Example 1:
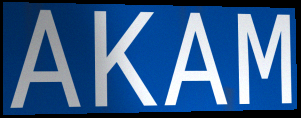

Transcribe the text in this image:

AKAM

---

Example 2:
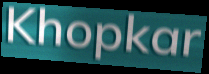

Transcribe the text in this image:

Khopkar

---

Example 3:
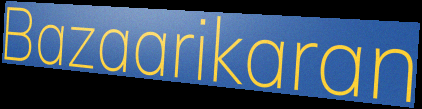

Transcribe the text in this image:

Bazaarikaran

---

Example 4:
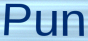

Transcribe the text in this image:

Pun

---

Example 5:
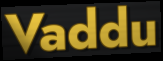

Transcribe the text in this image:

Vaddu